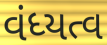
વંધ્યત્વ